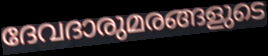
ദേവദാരുമരങ്ങളുടെ